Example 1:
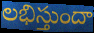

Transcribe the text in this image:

లభిస్తుందా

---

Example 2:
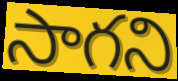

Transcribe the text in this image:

సాగని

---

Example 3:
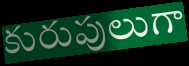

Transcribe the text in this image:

కురుపులుగా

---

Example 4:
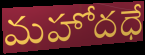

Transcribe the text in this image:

మహోదధే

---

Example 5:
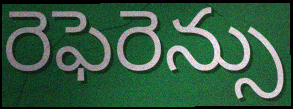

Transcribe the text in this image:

రెఫెరెన్సు